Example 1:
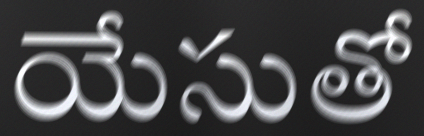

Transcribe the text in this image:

యేసుతో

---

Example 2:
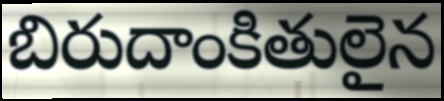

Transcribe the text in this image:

బిరుదాంకితులైన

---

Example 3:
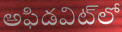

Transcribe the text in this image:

అఫిడవిట్‌లో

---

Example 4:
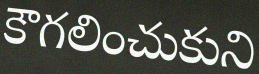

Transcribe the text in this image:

కౌగలించుకుని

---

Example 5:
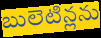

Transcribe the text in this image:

బులెటిన్లను